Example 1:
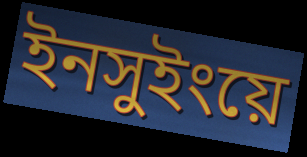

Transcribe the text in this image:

ইনসুইংয়ে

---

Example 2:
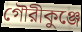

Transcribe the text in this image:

গৌরীকুঞ্জে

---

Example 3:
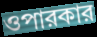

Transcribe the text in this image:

ওপারকার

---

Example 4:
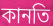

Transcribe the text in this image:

কানতি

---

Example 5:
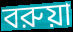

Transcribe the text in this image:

বরুয়া